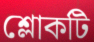
শ্লোকটি